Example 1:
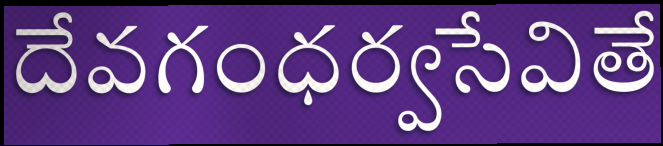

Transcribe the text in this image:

దేవగంధర్వసేవితే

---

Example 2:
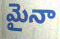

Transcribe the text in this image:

మైనా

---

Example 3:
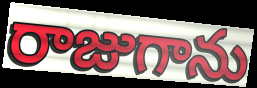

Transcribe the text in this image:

రాజుగాను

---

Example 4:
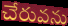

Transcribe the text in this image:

చేరువను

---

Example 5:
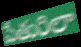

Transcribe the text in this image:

పేతురిలా